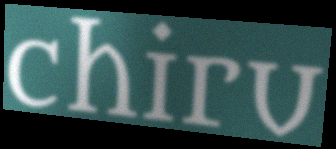
chiru